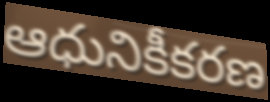
ఆధునికీకరణ